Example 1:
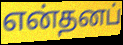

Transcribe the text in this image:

என்தனப்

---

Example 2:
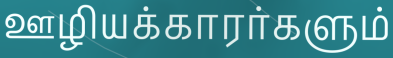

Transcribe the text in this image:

ஊழியக்காரர்களும்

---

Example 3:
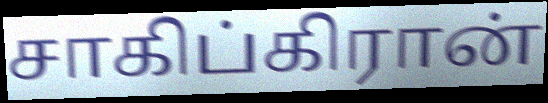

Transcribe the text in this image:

சாகிப்கிரான்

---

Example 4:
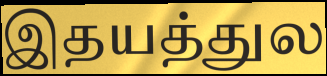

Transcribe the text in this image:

இதயத்துல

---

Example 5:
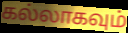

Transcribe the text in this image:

கல்லாகவும்